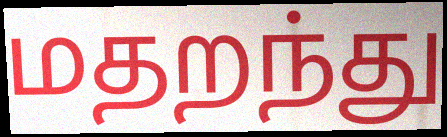
மதறந்து